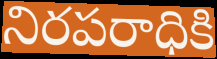
నిరపరాధికి